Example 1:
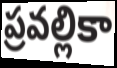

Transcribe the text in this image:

ప్రవల్లికా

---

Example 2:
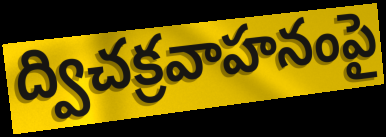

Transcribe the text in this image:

ద్విచక్రవాహనంపై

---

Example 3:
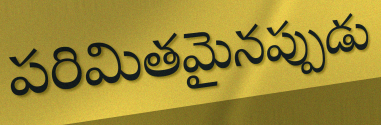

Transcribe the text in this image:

పరిమితమైనప్పుడు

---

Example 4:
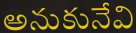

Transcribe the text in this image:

అనుకునేవి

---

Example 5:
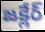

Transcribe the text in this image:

జక్లేర్